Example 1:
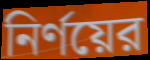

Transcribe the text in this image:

নির্ণয়ের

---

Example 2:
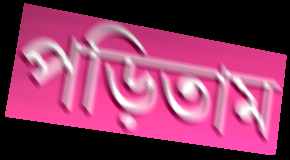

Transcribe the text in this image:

পড়িতাম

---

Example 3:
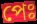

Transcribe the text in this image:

পেঃ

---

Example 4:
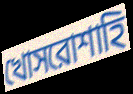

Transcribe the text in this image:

খোসরোশাহি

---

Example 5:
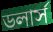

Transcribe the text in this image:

ডলার্স